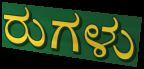
ರುಗಳು